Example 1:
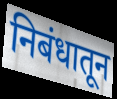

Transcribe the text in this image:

निबंधातून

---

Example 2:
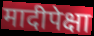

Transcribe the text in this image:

मादीपेक्षा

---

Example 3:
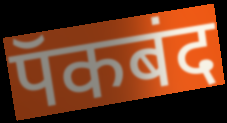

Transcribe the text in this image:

पॅकबंद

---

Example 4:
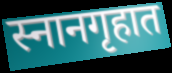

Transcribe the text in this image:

स्नानगृहात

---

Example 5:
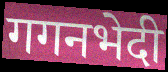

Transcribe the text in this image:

गगनभेदी